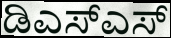
ಡಿಎಸ್ಎಸ್